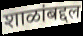
शाळांबद्दल